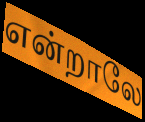
என்றாலே